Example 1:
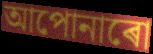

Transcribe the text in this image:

আপোনাৰো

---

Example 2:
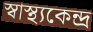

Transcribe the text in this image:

স্বাস্থ্যকেন্দ্ৰ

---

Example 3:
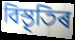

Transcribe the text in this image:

বিস্তৃতিৰ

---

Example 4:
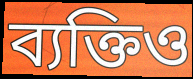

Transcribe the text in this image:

ব্যক্তিও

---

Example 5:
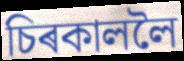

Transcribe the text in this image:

চিৰকাললৈ